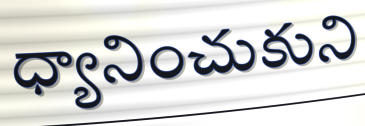
ధ్యానించుకుని